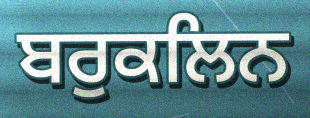
ਬਰੁਕਲਿਨ